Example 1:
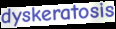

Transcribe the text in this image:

dyskeratosis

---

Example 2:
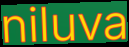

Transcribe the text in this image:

niluva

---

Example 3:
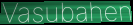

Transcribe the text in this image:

Vasubahen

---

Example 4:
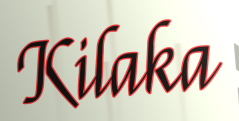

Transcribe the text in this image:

Kilaka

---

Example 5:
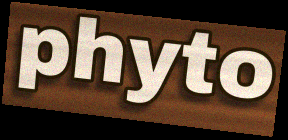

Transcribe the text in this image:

phyto